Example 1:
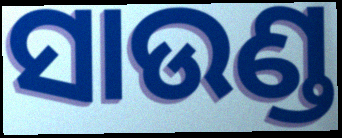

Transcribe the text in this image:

ସାଉଣ୍ଡ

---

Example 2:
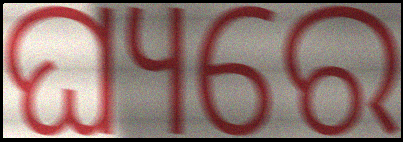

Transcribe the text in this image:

ଘ୍ୟରେ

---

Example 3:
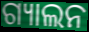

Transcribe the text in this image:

ଗ୍ୟାଲନ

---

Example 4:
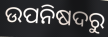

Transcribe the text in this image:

ଉପନିଷଦରୁ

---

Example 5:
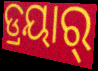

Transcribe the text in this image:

ଡ୍ରୟାର୍